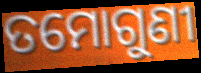
ତମୋଗୁଣୀ